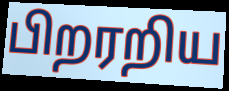
பிறரறிய